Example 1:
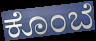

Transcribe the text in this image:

ಕೊಂಬೆ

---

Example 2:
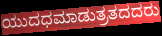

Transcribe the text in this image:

ಯುದಧಮಾಡುತ್ರತದದರು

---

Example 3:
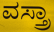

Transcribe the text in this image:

ವಸ್ತ್ರಾ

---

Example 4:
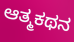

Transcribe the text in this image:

ಆತ್ಮಕಥನ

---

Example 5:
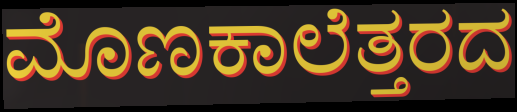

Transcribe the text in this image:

ಮೊಣಕಾಲೆತ್ತರದ